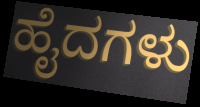
ಹೈದಗಳು